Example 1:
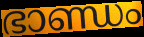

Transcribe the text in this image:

ഭാണ്ഡം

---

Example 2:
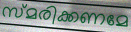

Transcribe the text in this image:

സ്മരിക്കണമേ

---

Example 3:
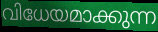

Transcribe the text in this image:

വിധേയമാക്കുന്ന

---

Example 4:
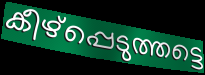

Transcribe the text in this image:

കീഴ്പ്പെടുത്തട്ടെ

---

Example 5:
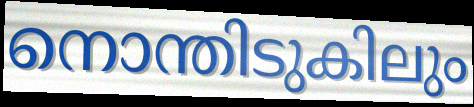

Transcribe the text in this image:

നൊന്തിടുകിലും